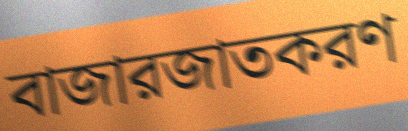
বাজারজাতকরণ